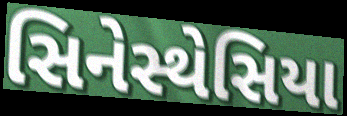
સિનેસ્થેસિયા